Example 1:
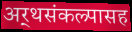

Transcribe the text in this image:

अर्थसंकल्पासह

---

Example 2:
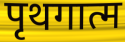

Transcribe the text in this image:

पृथगात्म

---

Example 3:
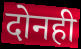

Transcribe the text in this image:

दोनही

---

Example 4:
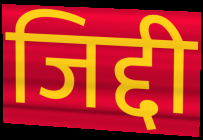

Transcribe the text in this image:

जिद्दी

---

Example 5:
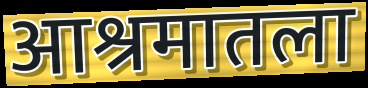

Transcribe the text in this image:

आश्रमातला